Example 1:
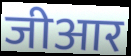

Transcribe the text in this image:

जीआर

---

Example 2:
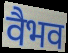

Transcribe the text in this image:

वैभव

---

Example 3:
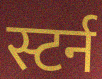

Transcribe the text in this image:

स्टर्न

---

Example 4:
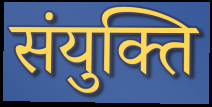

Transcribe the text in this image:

संयुक्ति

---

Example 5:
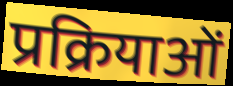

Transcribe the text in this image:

प्रक्रियाओं